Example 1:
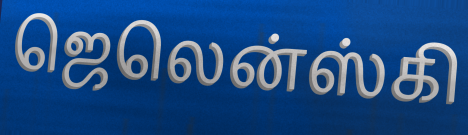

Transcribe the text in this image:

ஜெலென்ஸ்கி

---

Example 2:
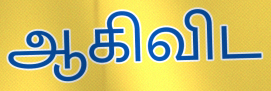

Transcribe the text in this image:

ஆகிவிட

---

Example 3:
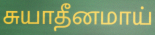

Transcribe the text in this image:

சுயாதீனமாய்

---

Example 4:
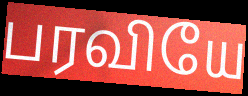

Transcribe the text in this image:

பரவியே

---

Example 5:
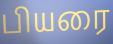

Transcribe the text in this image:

பியரை